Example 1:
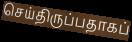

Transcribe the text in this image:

செய்திருப்பதாகப்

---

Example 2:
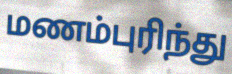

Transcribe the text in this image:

மணம்புரிந்து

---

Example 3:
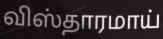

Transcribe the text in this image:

விஸ்தாரமாய்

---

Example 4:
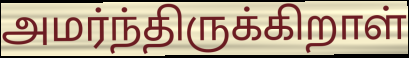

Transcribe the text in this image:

அமர்ந்திருக்கிறாள்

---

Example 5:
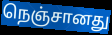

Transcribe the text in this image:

நெஞ்சானது